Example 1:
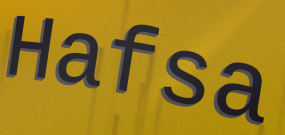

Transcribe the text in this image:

Hafsa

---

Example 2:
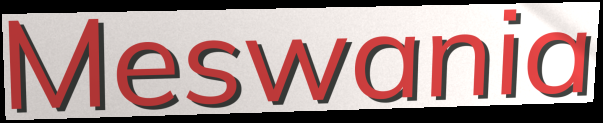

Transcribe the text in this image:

Meswania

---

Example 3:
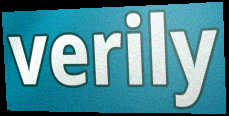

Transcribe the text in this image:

verily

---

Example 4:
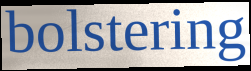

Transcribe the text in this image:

bolstering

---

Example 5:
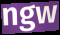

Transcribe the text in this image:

ngw